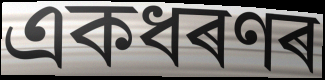
একধৰণৰ